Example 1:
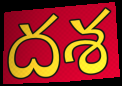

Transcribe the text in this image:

దశ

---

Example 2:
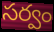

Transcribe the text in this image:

సర్వం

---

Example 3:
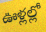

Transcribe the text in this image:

ఊళ్లల్లో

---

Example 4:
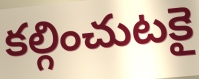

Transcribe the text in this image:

కల్గించుటకై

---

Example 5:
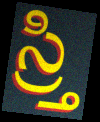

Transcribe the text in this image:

స్ర్తి